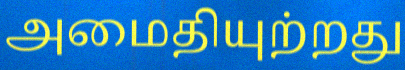
அமைதியுற்றது